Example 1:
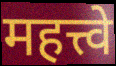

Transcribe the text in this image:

महत्त्वे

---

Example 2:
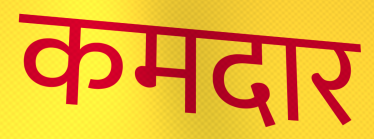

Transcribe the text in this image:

कमदार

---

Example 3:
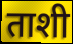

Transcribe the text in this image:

ताशी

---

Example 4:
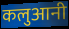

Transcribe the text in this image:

कलुआनी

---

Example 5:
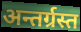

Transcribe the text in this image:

अन्तर्ग्रस्त